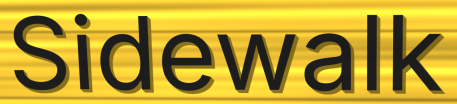
Sidewalk